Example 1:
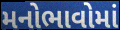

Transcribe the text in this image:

મનોભાવોમાં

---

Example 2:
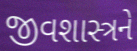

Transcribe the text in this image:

જીવશાસ્ત્રને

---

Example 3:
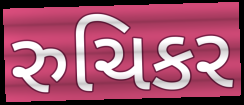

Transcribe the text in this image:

રુચિકર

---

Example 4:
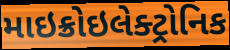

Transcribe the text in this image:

માઇક્રોઇલેક્ટ્રોનિક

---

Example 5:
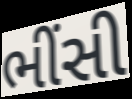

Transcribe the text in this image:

ભીંસી